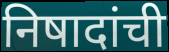
निषादांची